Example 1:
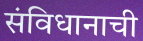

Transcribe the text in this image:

संविधानाची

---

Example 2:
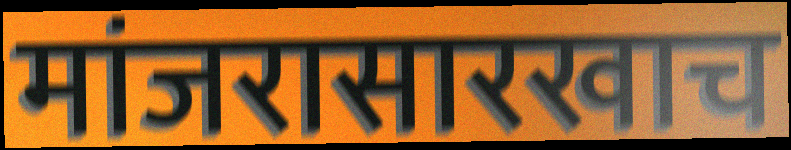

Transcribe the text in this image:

मांजरासारखाच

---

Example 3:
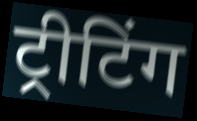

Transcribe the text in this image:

ट्रीटिंग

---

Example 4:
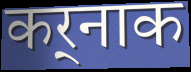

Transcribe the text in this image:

कर्नाक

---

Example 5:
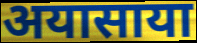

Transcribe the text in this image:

अयासाया